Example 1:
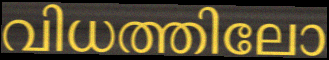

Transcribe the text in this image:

വിധത്തിലോ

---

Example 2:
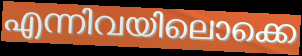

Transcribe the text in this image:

എന്നിവയിലൊക്കെ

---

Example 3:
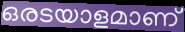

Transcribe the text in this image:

ഒരടയാളമാണ്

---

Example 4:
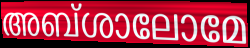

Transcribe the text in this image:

അബ്ശാലോമേ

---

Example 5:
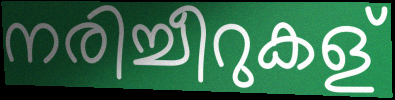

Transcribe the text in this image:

നരിച്ചീറുകള്